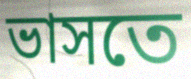
ভাসতে